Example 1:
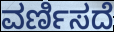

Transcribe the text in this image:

ವರ್ಣಿಸದೆ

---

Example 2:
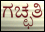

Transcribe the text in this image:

ಗಚ್ಛತಿ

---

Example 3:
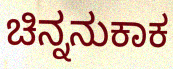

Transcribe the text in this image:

ಚಿನ್ನನುಕಾಕ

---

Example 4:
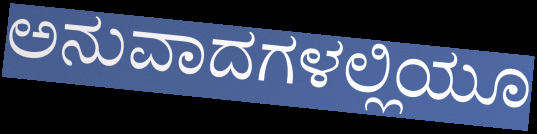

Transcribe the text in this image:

ಅನುವಾದಗಳಲ್ಲಿಯೂ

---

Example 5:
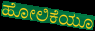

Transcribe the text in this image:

ಹೋಲಿಕೆಯೂ